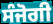
ਸੰਜੋਗੀ